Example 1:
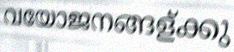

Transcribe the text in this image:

വയോജനങ്ങള്ക്കു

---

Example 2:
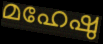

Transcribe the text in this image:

മഹേഷു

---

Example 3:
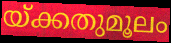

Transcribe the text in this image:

യ്ക്കതുമൂലം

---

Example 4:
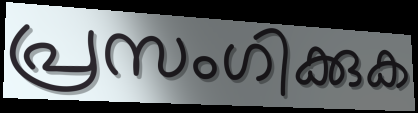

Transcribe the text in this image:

പ്രസംഗിക്കുക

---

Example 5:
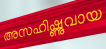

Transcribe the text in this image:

അസഹിഷ്ണുവായ